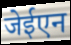
जेईएन